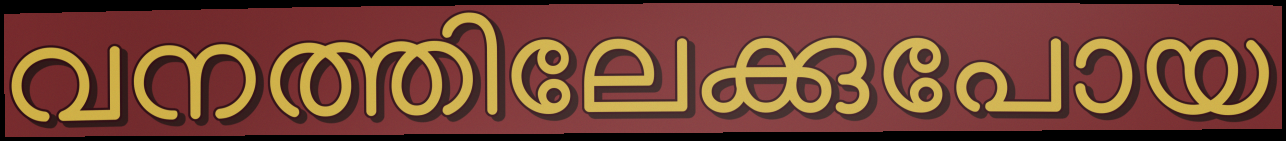
വനത്തിലേക്കുപോയ